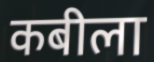
कबीला